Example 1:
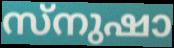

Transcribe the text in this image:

സ്നുഷാ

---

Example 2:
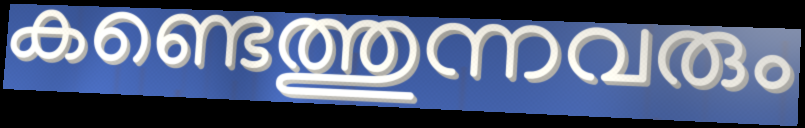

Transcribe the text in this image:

കണ്ടെത്തുന്നവരും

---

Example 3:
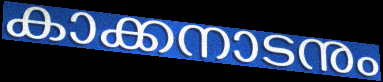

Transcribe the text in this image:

കാക്കനാടനും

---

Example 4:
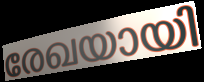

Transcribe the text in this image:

രേഖയായി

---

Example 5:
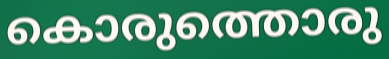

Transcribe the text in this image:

കൊരുത്തൊരു